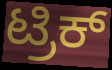
ಟ್ರಿಕ್